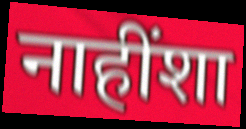
नाहींशा